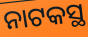
ନାଟକସ୍ଥ